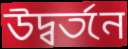
উদ্বর্তনে